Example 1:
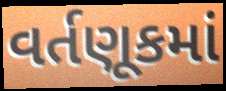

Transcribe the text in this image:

વર્તણૂકમાં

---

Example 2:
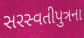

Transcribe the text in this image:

સરસ્વતીપુત્રના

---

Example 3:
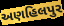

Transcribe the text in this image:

અણહિલપુર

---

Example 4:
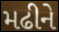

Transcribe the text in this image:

મઢીને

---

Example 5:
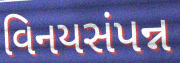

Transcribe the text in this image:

વિનયસંપન્ન